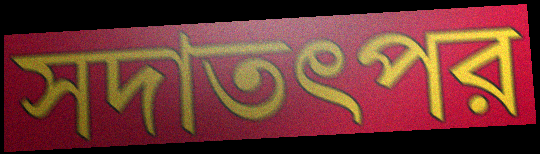
সদাতৎপর